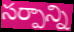
సర్పాన్ని